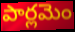
పార్లమెం